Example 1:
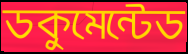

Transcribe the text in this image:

ডকুমেন্টেড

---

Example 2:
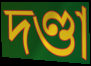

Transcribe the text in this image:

দণ্ডা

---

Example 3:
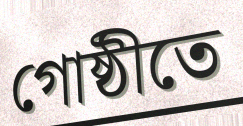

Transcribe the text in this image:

গোষ্ঠীতে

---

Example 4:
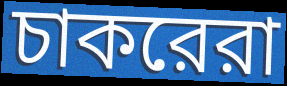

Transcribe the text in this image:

চাকরেরা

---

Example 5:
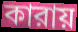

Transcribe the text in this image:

কারায়